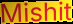
Mishit